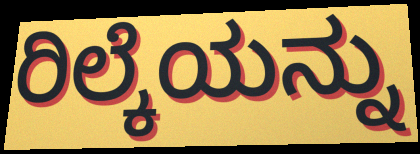
ರಿಲ್ಕೆಯನ್ನು